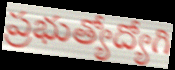
ప్రభుత్యోద్యోగి